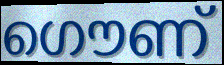
ഗൌണ്